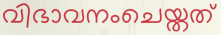
വിഭാവനംചെയ്തത്